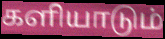
களியாடும்